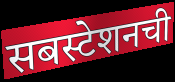
सबस्टेशनची